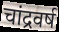
चांद्रवर्ष